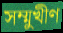
সম্মুখীণ